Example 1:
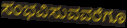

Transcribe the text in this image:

ಸಂಭವಿಸುವವರೆಗೂ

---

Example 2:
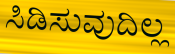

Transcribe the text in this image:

ಸಿಡಿಸುವುದಿಲ್ಲ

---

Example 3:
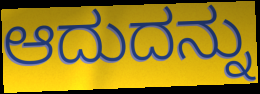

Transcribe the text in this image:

ಆದುದನ್ನು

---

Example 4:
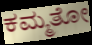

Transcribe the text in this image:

ಕಮ್ಮತೋ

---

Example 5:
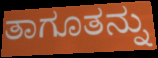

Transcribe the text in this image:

ತಾಗೂತನ್ನು